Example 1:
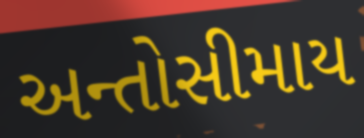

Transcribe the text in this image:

અન્તોસીમાય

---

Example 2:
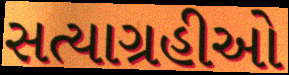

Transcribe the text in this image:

સત્યાગ્રહીઓ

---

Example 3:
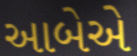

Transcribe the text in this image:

આબેએ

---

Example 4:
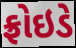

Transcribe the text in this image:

ફ્રોઇડે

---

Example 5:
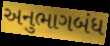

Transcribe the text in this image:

અનુભાગબંધ